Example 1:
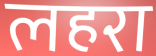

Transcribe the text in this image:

लहरा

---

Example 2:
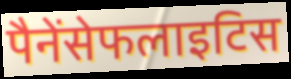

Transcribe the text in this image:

पैनेंसेफलाइटिस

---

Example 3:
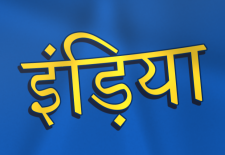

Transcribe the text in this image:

इंड़िया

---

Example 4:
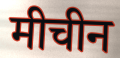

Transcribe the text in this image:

मीचीन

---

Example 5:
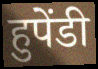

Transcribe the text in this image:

हुपेंडी